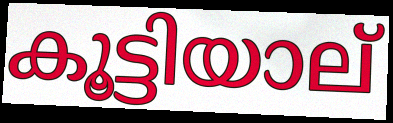
കൂട്ടിയാല്